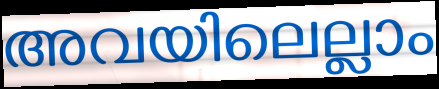
അവയിലെല്ലാം